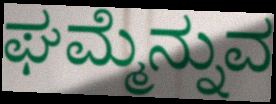
ಘಮ್ಮೆನ್ನುವ